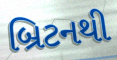
બ્રિટનથી